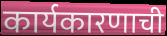
कार्यकारणाची